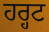
ਹਰ੍ਹਟ